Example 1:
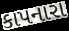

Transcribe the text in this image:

કાપનારા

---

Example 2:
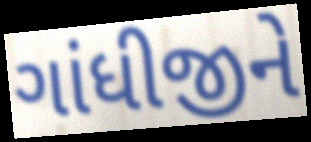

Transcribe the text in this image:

ગાંધીજીને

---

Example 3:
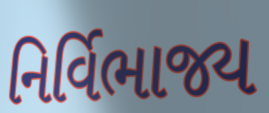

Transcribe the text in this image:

નિર્વિભાજ્ય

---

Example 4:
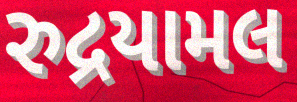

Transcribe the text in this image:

રુદ્રયામલ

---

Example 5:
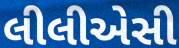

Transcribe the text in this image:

લીલીએસી